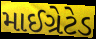
માઈગ્રેટેડ